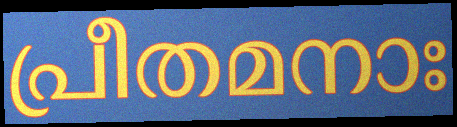
പ്രീതമനാഃ